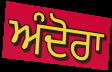
ਅੰਦੋਰਾ